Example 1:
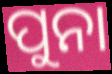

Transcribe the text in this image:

ପୁନା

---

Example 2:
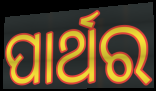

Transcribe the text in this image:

ପାର୍ଥର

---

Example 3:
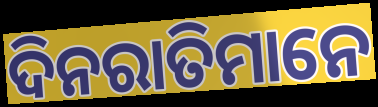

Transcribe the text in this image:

ଦିନରାତିମାନେ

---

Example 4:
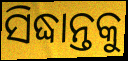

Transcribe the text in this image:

ସିଦ୍ଧାନ୍ତକୁ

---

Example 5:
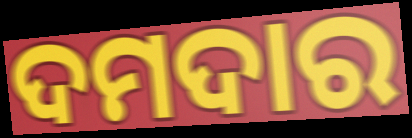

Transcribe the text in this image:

ଦମଦାର